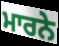
ਮਾਰਨੇ